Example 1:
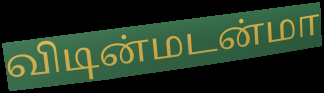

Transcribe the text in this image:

விடின்மடன்மா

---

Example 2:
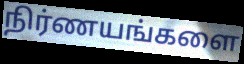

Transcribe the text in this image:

நிர்ணயங்களை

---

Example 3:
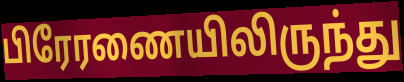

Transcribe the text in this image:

பிரேரணையிலிருந்து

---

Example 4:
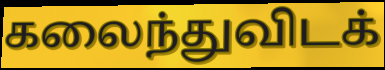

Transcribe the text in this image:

கலைந்துவிடக்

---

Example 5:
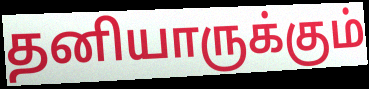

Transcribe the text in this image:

தனியாருக்கும்